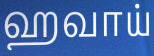
ஹவாய்